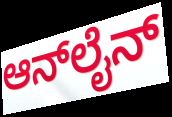
ಆನ್‌ಲೈನ್